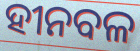
ହୀନବଳ